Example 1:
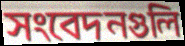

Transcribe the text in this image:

সংবেদনগুলি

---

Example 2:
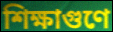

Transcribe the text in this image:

শিক্ষাগুণে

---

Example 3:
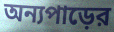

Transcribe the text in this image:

অন্যপাড়ের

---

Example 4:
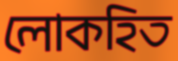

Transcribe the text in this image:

লোকহিত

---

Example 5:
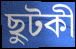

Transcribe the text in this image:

ছুটকী